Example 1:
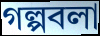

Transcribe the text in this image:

গল্পবলা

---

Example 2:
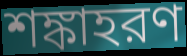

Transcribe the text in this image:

শঙ্কাহরণ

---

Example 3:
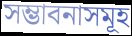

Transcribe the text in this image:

সম্ভাবনাসমূহ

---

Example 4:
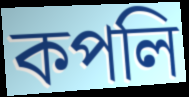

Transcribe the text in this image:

কপলি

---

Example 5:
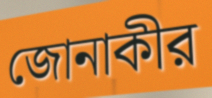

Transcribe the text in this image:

জোনাকীর